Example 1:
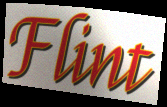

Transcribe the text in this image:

Flint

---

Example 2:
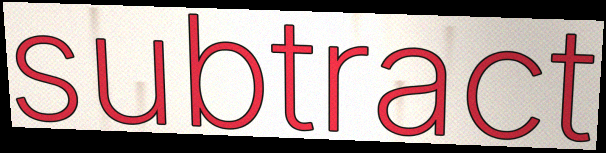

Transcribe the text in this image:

subtract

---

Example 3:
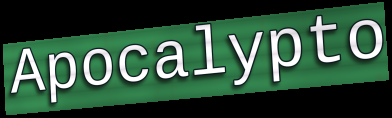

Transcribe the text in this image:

Apocalypto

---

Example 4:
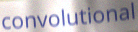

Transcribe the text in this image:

convolutional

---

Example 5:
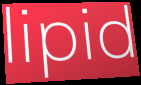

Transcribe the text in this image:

lipid